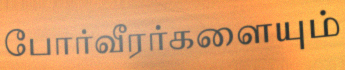
போர்வீரர்களையும்